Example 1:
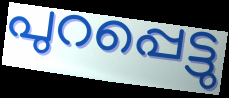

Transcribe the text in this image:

പുറപ്പെട്ടു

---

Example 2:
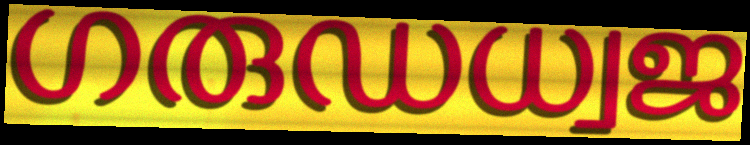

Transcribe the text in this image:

ഗരുഡധ്വജ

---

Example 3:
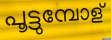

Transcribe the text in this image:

പൂട്ടുമ്പോള്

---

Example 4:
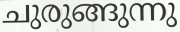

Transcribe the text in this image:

ചുരുങ്ങുന്നു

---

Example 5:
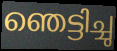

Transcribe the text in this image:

ഞെട്ടിച്ചു